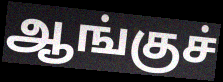
ஆங்குச்